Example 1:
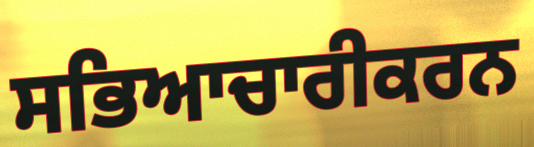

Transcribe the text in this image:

ਸਭਿਆਚਾਰੀਕਰਨ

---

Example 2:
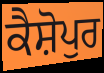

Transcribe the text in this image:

ਕੈਸ਼ੋਪੁਰ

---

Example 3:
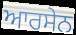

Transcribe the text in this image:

ਆਰਸੇਨ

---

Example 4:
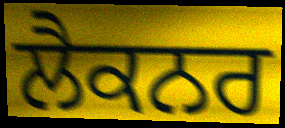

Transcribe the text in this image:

ਲੈਕਨਰ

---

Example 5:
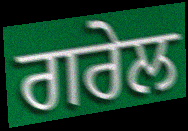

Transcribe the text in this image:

ਗਰੇਲ